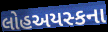
લોહઅયસ્કના